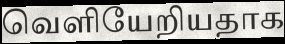
வெளியேறியதாக